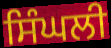
ਸਿੰਘਲੀ